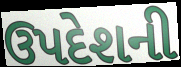
ઉપદેશની